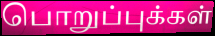
பொறுப்புக்கள்